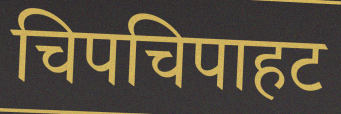
चिपचिपाहट